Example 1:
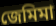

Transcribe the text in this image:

জেমিমা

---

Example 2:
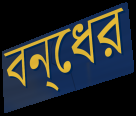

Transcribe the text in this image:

বন্‌ধের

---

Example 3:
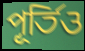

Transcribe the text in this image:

পূর্তিও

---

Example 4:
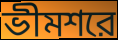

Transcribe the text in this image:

ভীমশরে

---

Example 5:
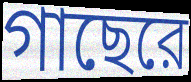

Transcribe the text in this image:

গাছেরে